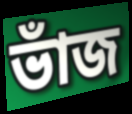
ভাঁজ